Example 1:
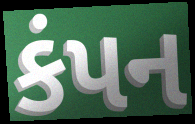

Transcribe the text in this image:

કંપન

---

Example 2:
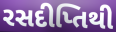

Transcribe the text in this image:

રસદીપ્તિથી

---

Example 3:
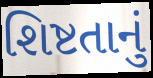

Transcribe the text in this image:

શિષ્ટતાનું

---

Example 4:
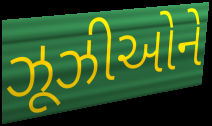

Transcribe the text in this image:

ઝૂઝીઓને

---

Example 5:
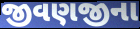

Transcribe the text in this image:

જીવણજીના